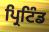
ਪ੍ਰਿਟਿੰਡ